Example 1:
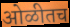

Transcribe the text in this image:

ओळीतच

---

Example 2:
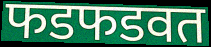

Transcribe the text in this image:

फडफडवत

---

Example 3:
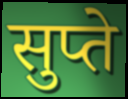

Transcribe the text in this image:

सुप्ते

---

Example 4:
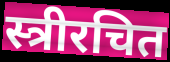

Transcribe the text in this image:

स्त्रीरचित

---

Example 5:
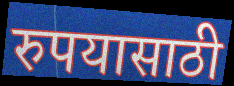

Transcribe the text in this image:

रुपयासाठी